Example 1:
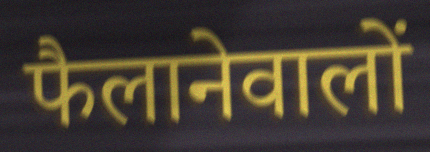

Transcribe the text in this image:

फैलानेवालों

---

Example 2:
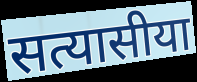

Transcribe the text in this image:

सत्यासीया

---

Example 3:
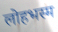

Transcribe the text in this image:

लोहभस्म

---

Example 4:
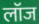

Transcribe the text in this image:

लॉज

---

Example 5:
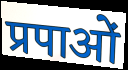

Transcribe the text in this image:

प्रपाओं